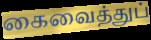
கைவைத்துப்